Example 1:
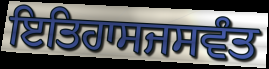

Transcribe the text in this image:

ਇਤਿਹਾਸਜਸਵੰਤ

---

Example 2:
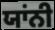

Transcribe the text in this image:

ਯਾਂਨੀ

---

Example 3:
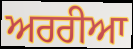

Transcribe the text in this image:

ਅਰਰੀਆ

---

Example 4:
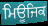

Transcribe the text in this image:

ਮਿਊਜਿਕ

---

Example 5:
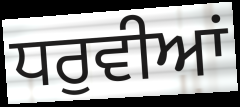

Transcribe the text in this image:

ਧਰੁਵੀਆਂ